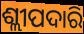
ଶ୍ଲୀପଦାରି